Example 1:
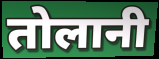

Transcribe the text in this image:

तोलानी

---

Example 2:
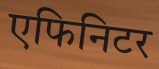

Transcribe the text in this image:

एफिनिटर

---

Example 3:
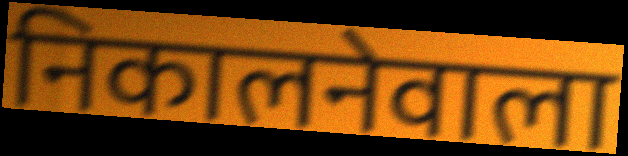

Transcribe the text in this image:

निकालनेवाला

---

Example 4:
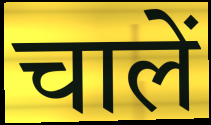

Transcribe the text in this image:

चालें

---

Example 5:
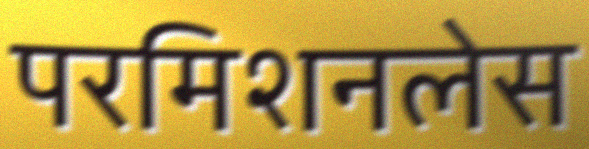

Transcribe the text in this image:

परमिशनलेस